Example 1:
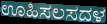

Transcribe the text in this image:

ಊಹಿಸಲಸದಳ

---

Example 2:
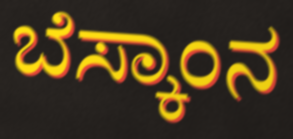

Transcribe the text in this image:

ಬೆಸ್ಕಾಂನ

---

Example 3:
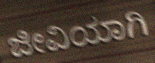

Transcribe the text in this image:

ಜೀವಿಯಾಗಿ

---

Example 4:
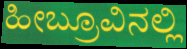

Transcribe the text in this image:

ಹೀಬ್ರೂವಿನಲ್ಲಿ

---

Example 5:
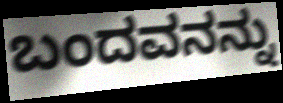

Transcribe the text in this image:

ಬಂದವನನ್ನು